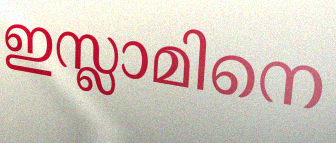
ഇസ്ലാമിനെ